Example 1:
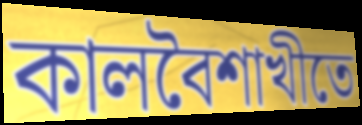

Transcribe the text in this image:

কালবৈশাখীতে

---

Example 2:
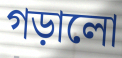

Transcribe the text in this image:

গড়ালো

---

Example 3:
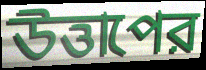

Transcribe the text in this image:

উত্তাপের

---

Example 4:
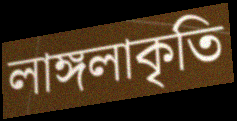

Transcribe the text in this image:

লাঙ্গলাকৃতি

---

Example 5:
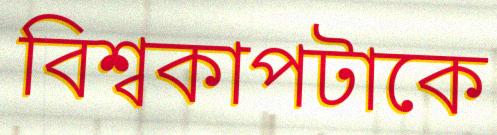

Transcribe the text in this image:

বিশ্বকাপটাকে